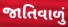
જાતિવાળું